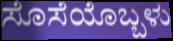
ಸೊಸೆಯೊಬ್ಬಳು